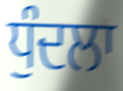
ਧੁੰਦਲਾ